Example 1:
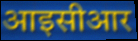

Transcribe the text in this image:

आइसीआर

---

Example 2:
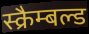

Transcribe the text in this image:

स्क्रैम्बल्ड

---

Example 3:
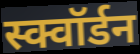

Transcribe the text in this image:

स्क्वॉर्डन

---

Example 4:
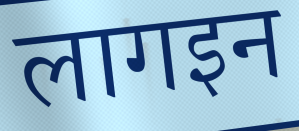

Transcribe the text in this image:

लागइन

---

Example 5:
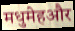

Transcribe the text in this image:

मधुमेहऔर